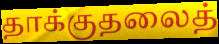
தாக்குதலைத்